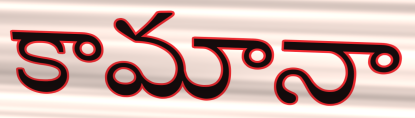
కామానా